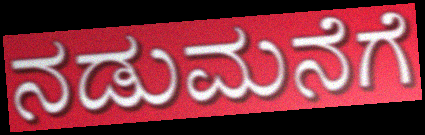
ನಡುಮನೆಗೆ